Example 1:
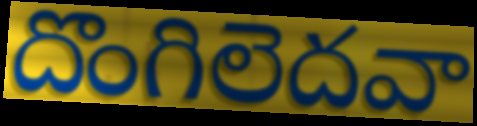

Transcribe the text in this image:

దొంగిలెదవా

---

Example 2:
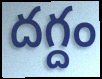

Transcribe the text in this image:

దగ్దం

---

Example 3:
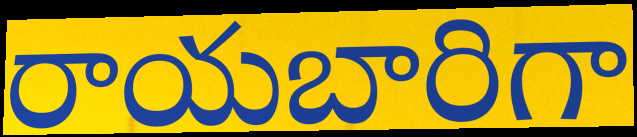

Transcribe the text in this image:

రాయబారిగా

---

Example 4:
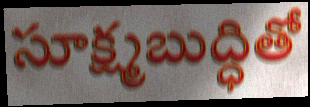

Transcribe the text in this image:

సూక్ష్మబుద్ధితో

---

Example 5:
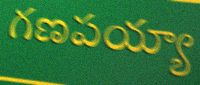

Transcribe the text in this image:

గణపయ్యా